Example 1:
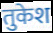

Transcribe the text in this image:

तुकेश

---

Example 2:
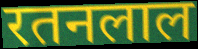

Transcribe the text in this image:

रतनलाल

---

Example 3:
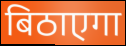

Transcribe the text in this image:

बिठाएगा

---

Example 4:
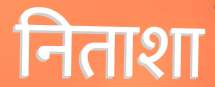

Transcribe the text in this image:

निताशा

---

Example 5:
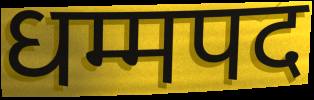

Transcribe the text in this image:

धम्मपद